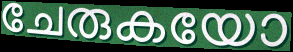
ചേരുകയോ